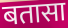
बतासा